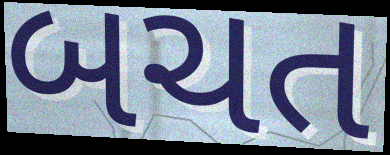
બચત